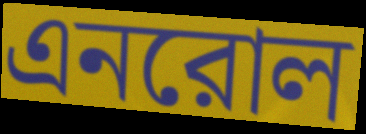
এনরোল